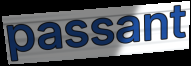
passant